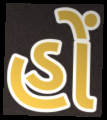
હોં